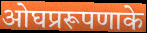
ओघप्ररूपणाके